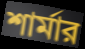
শার্মার